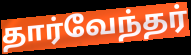
தார்வேந்தர்